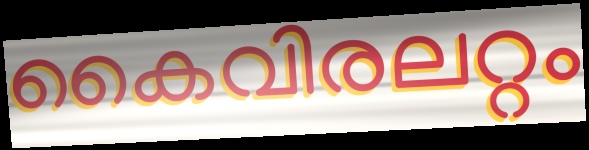
കൈവിരലറ്റം